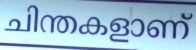
ചിന്തകളാണ്